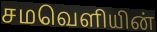
சமவெளியின்